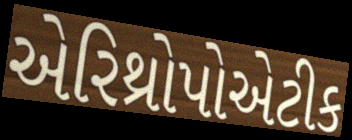
એરિથ્રોપોએટીક